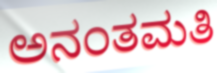
ಅನಂತಮತಿ